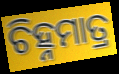
ଚିହ୍ନମାତ୍ର